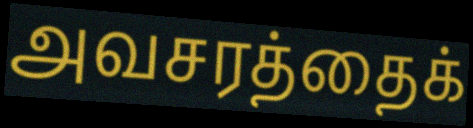
அவசரத்தைக்